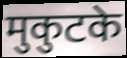
मुकुटके